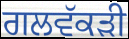
ਗਲਵੱਕਡ਼ੀ